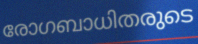
രോഗബാധിതരുടെ